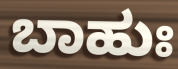
ಬಾಹುಃ